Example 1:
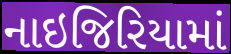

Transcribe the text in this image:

નાઇજિરિયામાં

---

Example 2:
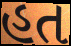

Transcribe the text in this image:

હત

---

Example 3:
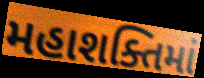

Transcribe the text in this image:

મહાશક્તિમાં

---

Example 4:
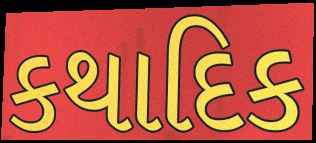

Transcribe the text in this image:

કથાદિક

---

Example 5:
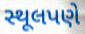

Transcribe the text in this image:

સ્થૂલપણે